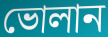
ভোলান